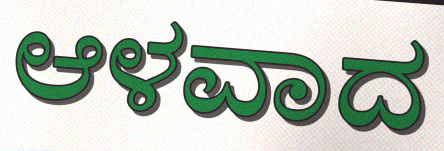
ಆಳವಾದ